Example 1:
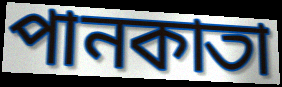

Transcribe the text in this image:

পানকাতা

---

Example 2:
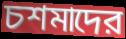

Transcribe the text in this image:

চশমাদের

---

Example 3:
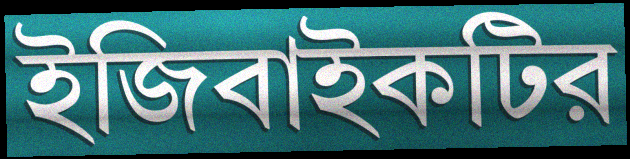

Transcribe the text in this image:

ইজিবাইকটির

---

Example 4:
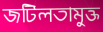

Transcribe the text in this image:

জটিলতামুক্ত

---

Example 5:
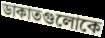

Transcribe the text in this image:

ডাকাতগুলোকে